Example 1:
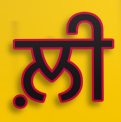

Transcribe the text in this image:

ਲ਼ੀ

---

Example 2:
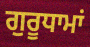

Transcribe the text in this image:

ਗੁਰੂਧਾਮਾਂ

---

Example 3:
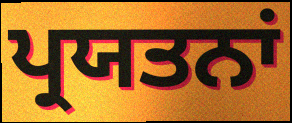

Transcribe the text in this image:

ਪ੍ਰਯਤਨਾਂ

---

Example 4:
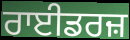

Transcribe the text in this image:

ਰਾਈਡਰਜ਼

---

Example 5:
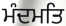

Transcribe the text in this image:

ਮੰਦਮਤਿ